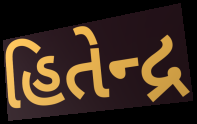
હિતેન્દ્ર